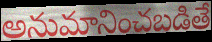
అనుమానించబడితే